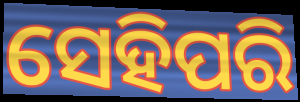
ସେହିପରି